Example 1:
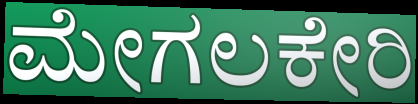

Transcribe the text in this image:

ಮೇಗಲಕೇರಿ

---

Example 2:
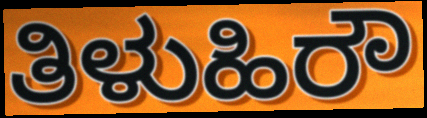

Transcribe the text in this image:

ತಿಳುಹಿರೌ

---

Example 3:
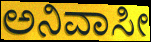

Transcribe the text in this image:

ಅನಿವಾಸೀ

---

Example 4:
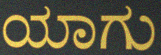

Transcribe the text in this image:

ಯಾಗು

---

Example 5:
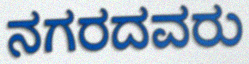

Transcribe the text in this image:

ನಗರದವರು